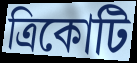
ত্রিকোটি